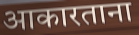
आकारताना